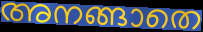
അനങ്ങാതെ